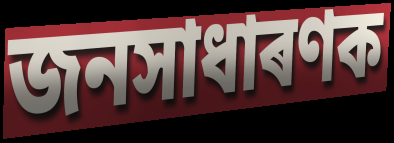
জনসাধাৰণক